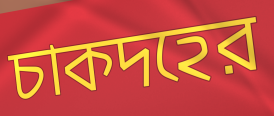
চাকদহের